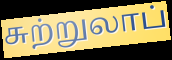
சுற்றுலாப்